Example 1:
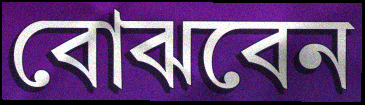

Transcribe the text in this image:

বোঝবেন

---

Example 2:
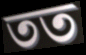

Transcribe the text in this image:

তত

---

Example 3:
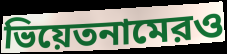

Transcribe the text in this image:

ভিয়েতনামেরও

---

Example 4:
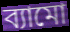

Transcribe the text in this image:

ব্যামো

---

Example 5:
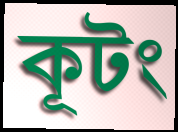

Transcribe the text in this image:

কূটং